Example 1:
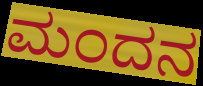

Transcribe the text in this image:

ಮಂದನ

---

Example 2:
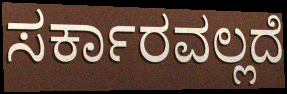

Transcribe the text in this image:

ಸರ್ಕಾರವಲ್ಲದೆ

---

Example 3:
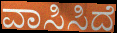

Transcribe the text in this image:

ವಾಸಿಸಿದೆ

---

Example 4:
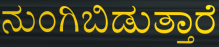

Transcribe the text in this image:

ನುಂಗಿಬಿಡುತ್ತಾರೆ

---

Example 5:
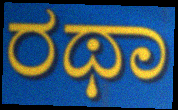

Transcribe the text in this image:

ರಥಾ